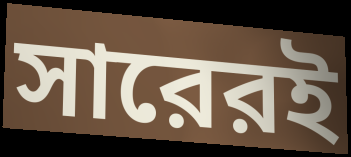
সারেরই